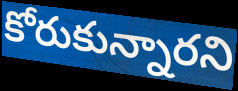
కోరుకున్నారని